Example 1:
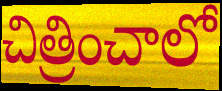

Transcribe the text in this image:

చిత్రించాలో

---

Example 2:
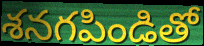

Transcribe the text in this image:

శనగపిండితో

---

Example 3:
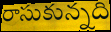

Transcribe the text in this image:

రాసుకున్నది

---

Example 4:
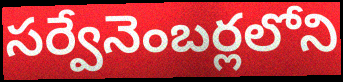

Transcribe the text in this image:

సర్వేనెంబర్లలోని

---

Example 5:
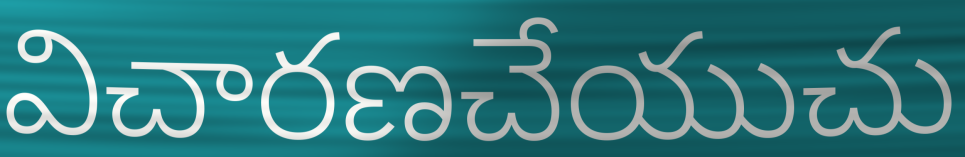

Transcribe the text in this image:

విచారణచేయుచు